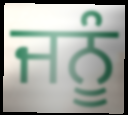
ਜਨੂੰ